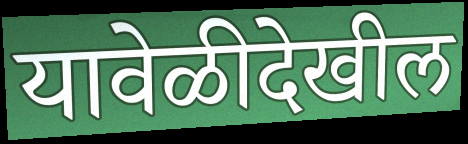
यावेळीदेखील